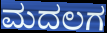
ಮದಲಗ